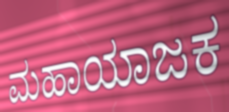
ಮಹಾಯಾಜಕ